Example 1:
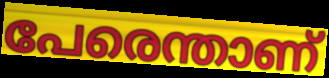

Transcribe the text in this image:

പേരെന്താണ്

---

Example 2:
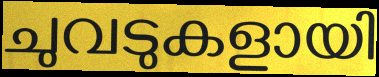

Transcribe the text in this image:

ചുവടുകളായി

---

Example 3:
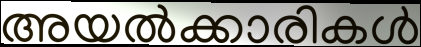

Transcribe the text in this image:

അയൽക്കാരികൾ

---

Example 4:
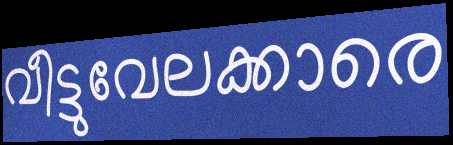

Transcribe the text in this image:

വീട്ടുവേലക്കാരെ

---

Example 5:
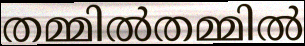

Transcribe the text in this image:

തമ്മിൽതമ്മിൽ